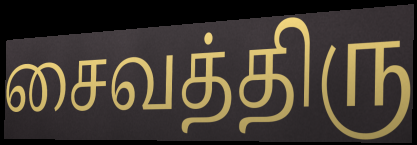
சைவத்திரு